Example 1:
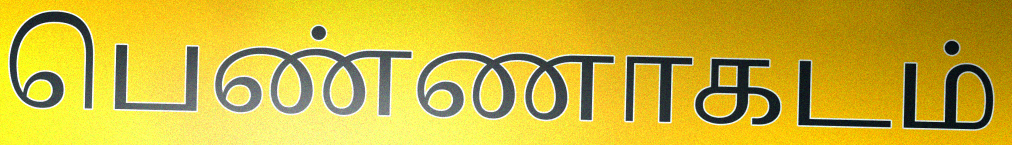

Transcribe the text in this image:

பெண்ணாகடம்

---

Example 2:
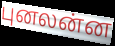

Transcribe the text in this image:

புனலன்ன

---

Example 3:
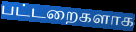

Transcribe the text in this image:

பட்டறைகளாக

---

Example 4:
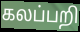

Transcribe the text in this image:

கலப்பறி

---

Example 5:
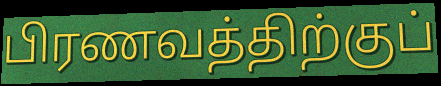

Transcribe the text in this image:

பிரணவத்திற்குப்